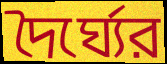
দৈর্ঘ্যের